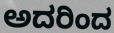
ಅದರಿಂದ